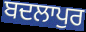
ਬਦਲਾਪੁਰ